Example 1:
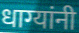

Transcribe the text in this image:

धाग्यांनी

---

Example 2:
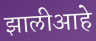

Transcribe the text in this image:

झालीआहे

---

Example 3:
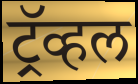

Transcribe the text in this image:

ट्रॅव्हल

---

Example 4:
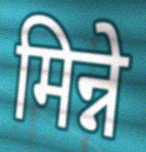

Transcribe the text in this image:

मिन्ने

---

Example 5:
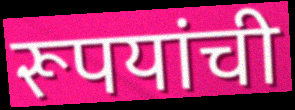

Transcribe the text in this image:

रूपयांची